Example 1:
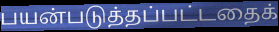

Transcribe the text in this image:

பயன்படுத்தப்பட்டதைக்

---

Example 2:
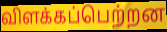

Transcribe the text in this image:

விளக்கப்பெற்றன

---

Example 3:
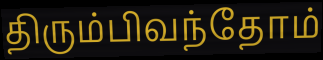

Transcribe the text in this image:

திரும்பிவந்தோம்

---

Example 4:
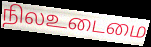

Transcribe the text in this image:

நிலஉடைமை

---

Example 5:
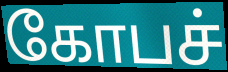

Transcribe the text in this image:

கோபச்